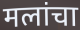
मलांचा